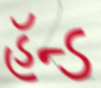
હૅન્ડ